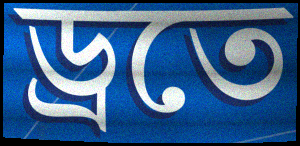
ড্রতে